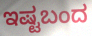
ಇಷ್ಟಬಂದ